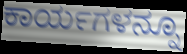
ಕಾರ್ಯಗಳನ್ನೂ